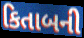
કિતાબની